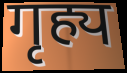
गृह्य